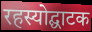
रहस्योद्घाटक